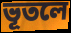
ভূতলে